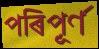
পৰিপূৰ্ণ